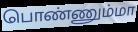
பொண்ணும்மா